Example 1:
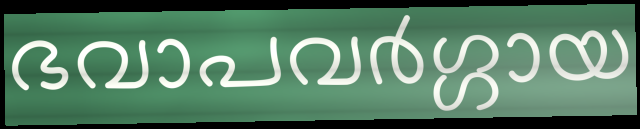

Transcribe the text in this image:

ഭവാപവർഗ്ഗായ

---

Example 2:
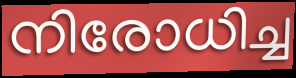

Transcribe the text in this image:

നിരോധിച്ച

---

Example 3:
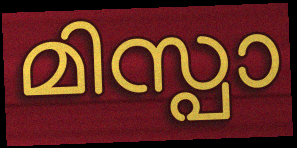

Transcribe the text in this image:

മിസ്പാ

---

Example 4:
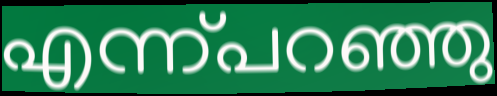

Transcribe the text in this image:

എന്ന്പറഞ്ഞു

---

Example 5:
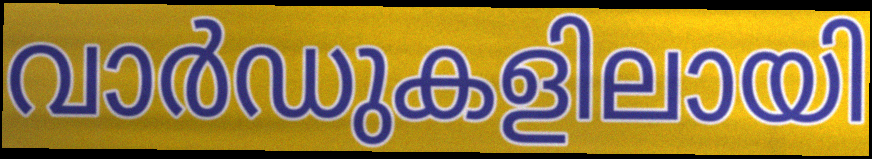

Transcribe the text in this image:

വാർഡുകളിലായി